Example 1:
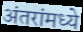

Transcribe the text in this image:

अंतरांमध्ये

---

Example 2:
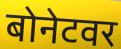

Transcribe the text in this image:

बोनेटवर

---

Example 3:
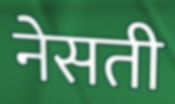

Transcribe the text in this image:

नेसती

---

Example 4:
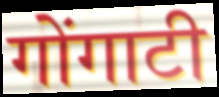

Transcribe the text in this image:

गोंगाटी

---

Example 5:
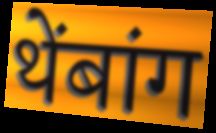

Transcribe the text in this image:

थेंबांग